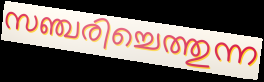
സഞ്ചരിച്ചെത്തുന്ന